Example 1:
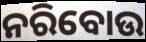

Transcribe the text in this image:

ନରିବୋଉ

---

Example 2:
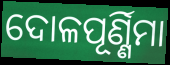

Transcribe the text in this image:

ଦୋଳପୂର୍ଣ୍ଣିମା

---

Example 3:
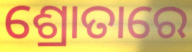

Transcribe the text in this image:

ଶ୍ରୋତାରେ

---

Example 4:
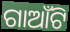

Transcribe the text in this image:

ଗାଆଁଟି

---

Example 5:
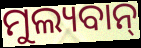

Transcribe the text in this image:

ମୁଲ୍ୟବାନ୍